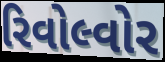
રિવોલ્વોર